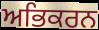
ਅਭਿਕਰਨ